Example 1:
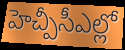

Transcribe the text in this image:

హెచ్పీసీఎల్లో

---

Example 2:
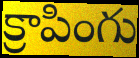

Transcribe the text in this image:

క్రాపింగు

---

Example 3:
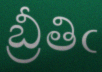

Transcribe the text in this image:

బ్రీతిఁ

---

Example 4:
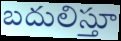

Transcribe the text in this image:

బదులిస్తూ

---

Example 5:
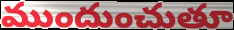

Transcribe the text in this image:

ముందుంచుతూ